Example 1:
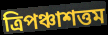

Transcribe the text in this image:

ত্রিপঞ্চাশত্তম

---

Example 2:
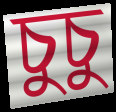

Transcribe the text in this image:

চুচু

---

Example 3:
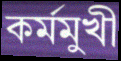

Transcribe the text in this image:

কর্মমুখী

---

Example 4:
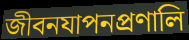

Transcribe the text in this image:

জীবনযাপনপ্রণালি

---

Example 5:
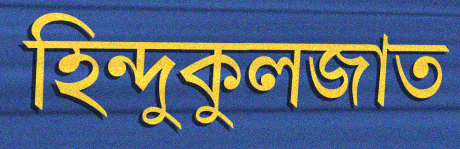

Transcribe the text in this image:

হিন্দুকুলজাত